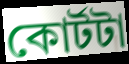
কোর্টটা